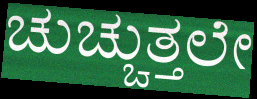
ಚುಚ್ಚುತ್ತಲೇ